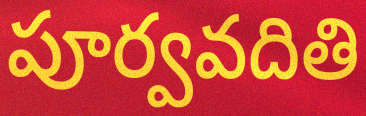
పూర్వవదితి